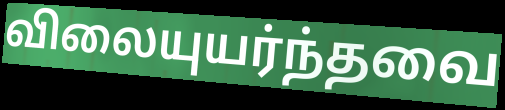
விலையுயர்ந்தவை